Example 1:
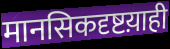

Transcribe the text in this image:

मानसिकदृष्टय़ाही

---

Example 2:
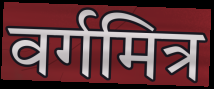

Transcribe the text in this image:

वर्गमित्र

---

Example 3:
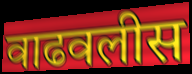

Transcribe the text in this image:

वाढवलीस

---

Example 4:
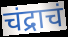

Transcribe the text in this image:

चंद्राचं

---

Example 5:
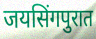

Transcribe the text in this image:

जयसिंगपुरात